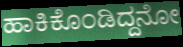
ಹಾಕಿಕೊಂಡಿದ್ದನೋ